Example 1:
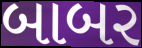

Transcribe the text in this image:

બાબર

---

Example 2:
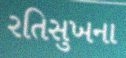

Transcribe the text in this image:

રતિસુખના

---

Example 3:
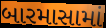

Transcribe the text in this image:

બારમાસામાં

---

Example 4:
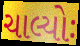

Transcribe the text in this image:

ચાલ્યોઃ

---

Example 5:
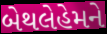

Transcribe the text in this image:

બેથલેહેમને